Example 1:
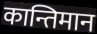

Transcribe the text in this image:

कान्तिमान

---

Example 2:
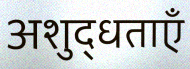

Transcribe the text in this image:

अशुद्धताएँ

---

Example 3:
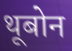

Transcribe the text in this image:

थूबोन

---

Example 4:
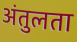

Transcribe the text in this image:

अंतुलता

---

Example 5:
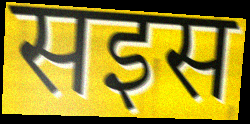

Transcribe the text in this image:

सइस